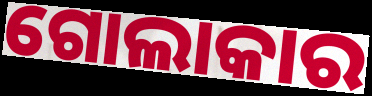
ଗୋଲାକାର